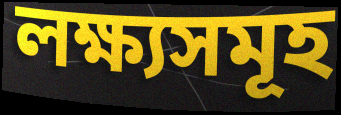
লক্ষ্যসমূহ